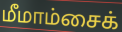
மீமாம்சைக்